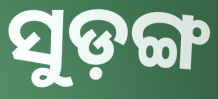
ସୁଡ଼ଙ୍ଗ